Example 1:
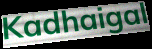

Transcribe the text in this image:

Kadhaigal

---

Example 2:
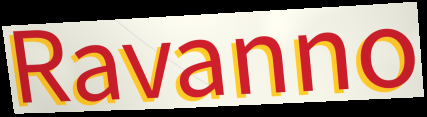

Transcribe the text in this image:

Ravanno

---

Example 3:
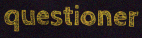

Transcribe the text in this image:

questioner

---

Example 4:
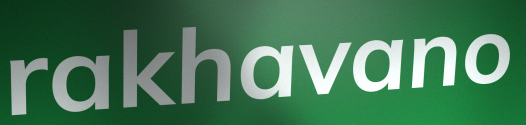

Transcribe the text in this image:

rakhavano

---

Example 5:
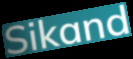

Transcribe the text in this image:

Sikand